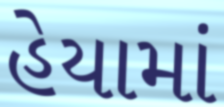
હેયામાં